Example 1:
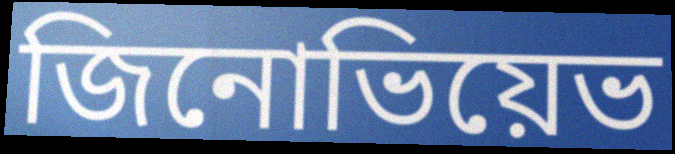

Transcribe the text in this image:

জিনোভিয়েভ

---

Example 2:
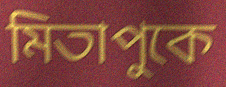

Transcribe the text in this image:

মিতাপুকে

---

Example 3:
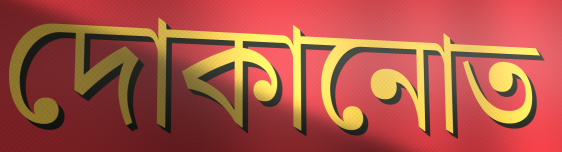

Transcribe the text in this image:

দোকানোত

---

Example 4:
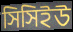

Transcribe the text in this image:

সিসিইউ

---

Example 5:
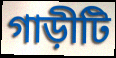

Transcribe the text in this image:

গাড়ীটি